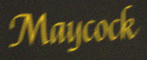
Maycock